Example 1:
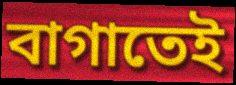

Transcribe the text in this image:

বাগাতেই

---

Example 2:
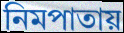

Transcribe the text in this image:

নিমপাতায়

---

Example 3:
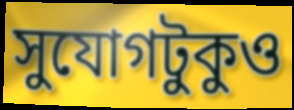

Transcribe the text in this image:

সুযোগটুকুও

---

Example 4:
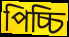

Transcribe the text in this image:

পিচ্চি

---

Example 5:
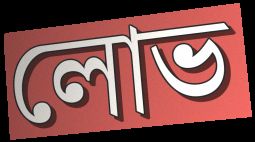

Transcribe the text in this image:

লোভ